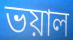
ভয়াল